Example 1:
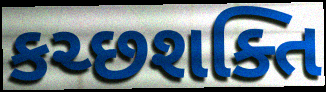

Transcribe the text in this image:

કચ્છશક્તિ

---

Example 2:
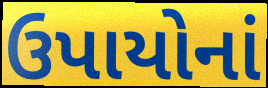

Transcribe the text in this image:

ઉપાયોનાં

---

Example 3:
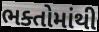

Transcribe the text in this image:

ભક્તોમાંથી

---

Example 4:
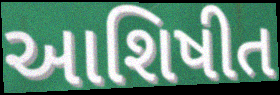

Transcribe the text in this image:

આશિષીત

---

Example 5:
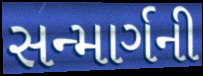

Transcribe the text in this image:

સન્માર્ગની